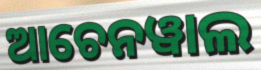
ଆଚେନୱାଲ